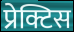
प्रेक्टिस